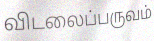
விடலைப்பருவம்